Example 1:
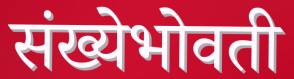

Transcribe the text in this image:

संख्येभोवती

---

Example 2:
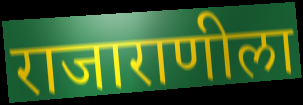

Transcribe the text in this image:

राजाराणीला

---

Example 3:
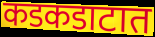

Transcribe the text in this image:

कडकडाटात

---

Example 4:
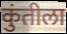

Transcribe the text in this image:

कुंतीला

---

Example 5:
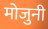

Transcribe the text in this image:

मोजुनी